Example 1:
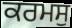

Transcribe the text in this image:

ਕਰਮਸੁ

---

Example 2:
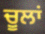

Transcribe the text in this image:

ਚੂਲਾਂ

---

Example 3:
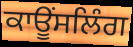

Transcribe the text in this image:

ਕਾਊਂਸਲਿੰਗ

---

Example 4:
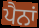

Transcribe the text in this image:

ਪੈਨਾਂ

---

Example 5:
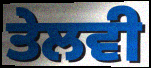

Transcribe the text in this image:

ਤੇਲਵੀ